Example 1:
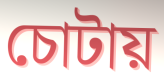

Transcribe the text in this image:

চোটায়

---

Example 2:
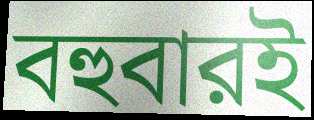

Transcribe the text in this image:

বহুবারই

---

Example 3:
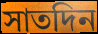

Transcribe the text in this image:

সাতদিন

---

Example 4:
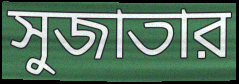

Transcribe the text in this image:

সুজাতার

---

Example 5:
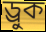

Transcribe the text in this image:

ড্রুক